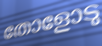
തോളോടു